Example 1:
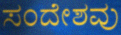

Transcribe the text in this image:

ಸಂದೇಶವು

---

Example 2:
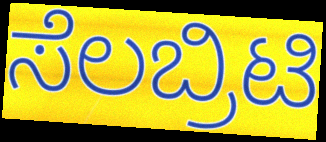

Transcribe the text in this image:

ಸೆಲಬ್ರಿಟಿ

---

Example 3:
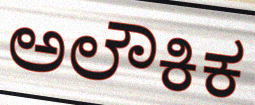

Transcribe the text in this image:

ಅಲೌಕಿಕ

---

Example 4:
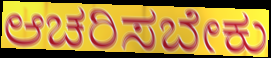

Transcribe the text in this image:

ಆಚರಿಸಬೇಕು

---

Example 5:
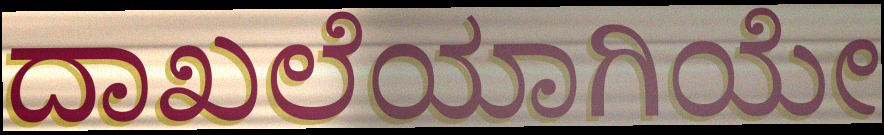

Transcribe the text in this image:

ದಾಖಲೆಯಾಗಿಯೇ